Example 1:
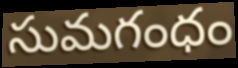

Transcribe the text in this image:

సుమగంధం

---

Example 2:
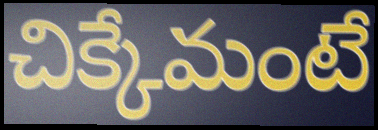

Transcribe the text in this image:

చిక్కేమంటే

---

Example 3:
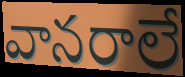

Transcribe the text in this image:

వానరాలే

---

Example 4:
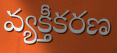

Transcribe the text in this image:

వ్యక్తీకరణ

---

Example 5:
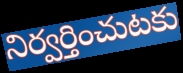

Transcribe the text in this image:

నిర్వర్తించుటకు